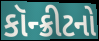
કૉન્ક્રીટનો